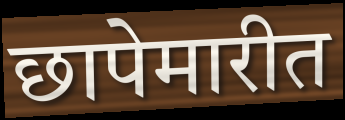
छापेमारीत